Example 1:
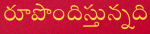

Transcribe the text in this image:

రూపొందిస్తున్నది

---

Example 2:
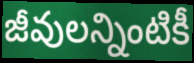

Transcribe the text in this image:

జీవులన్నింటికీ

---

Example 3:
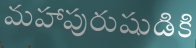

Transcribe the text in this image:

మహాపురుషుడికి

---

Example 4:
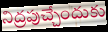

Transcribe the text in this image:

నిద్రపుచ్చేందుకు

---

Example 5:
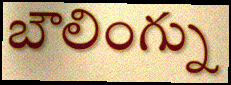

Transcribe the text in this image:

బౌలింగ్ను